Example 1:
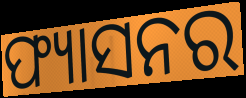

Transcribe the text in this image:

ଫ୍ୟାସନର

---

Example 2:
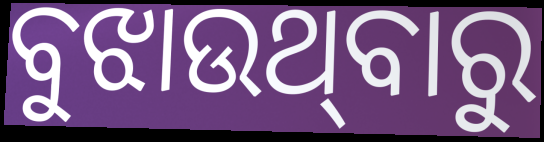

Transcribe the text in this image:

ବୁଝାଉଥ୍‌ବାରୁ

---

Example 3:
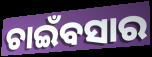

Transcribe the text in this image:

ଚାଇଁବସାର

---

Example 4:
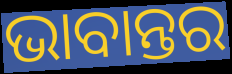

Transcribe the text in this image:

ଭାବାନ୍ତର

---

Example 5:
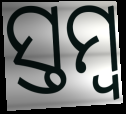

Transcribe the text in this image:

ସ୍ତମ୍ଵ